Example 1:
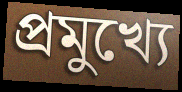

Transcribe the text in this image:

প্ৰমুখ্যে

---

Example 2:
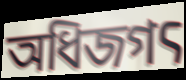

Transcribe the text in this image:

অধিজগৎ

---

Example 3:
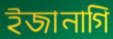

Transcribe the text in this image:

ইজানাগি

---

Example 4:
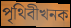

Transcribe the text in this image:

পৃথিবীখনক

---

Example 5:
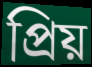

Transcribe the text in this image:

প্ৰিয়